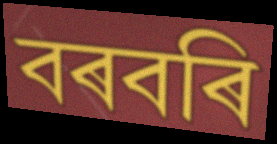
বৰবৰি